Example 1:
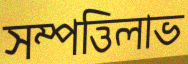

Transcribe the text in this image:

সম্পত্তিলাভ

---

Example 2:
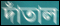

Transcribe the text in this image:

দাঁতাল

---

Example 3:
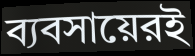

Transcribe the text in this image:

ব্যবসায়েরই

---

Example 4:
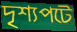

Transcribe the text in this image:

দৃশ্যপটে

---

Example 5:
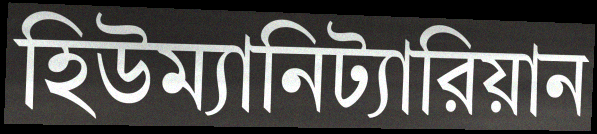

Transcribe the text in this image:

হিউম্যানিট্যারিয়ান